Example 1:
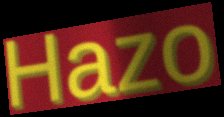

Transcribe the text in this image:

Hazo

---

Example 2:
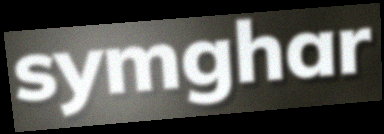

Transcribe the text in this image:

symghar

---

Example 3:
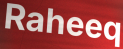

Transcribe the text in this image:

Raheeq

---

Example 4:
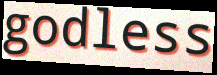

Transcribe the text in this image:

godless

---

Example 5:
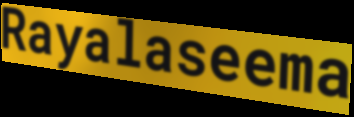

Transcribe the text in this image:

Rayalaseema